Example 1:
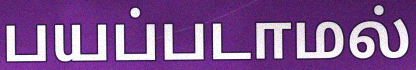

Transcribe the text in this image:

பயப்படாமல்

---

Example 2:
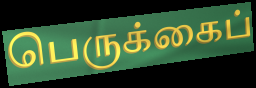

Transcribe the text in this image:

பெருக்கைப்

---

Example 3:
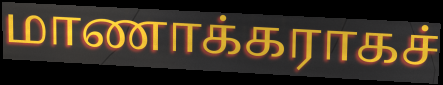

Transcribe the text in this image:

மாணாக்கராகச்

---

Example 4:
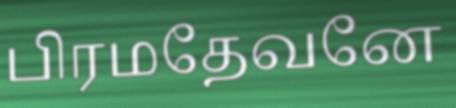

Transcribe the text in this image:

பிரமதேவனே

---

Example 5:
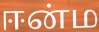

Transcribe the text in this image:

ஈன்ம